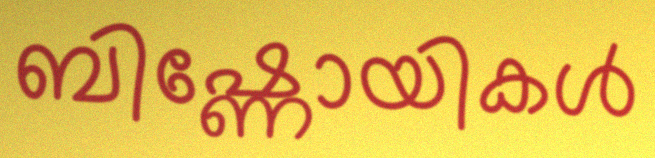
ബിഷ്ണോയികൾ